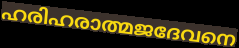
ഹരിഹരാത്മജദേവനെ